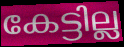
കേട്ടില്ല